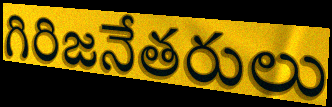
గిరిజనేతరులు